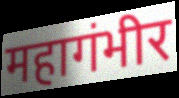
महागंभीर